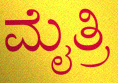
ಮೈತ್ರಿ